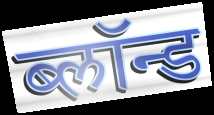
ब्लॉन्ड